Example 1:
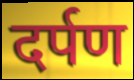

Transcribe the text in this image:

दर्पण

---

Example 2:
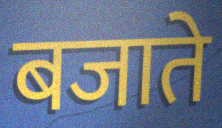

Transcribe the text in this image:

बजाते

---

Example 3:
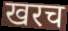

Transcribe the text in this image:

खरच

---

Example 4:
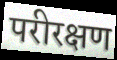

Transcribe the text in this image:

परीरक्षण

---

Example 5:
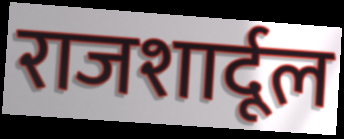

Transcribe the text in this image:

राजशार्दूल